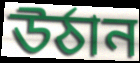
উঠান